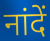
नांदें